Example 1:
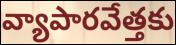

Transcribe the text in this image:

వ్యాపారవేత్తకు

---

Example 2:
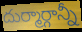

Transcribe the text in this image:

దుర్మార్గాన్నీ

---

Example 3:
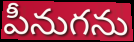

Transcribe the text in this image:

పీనుగను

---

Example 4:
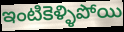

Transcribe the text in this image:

ఇంటికెళ్ళిపోయి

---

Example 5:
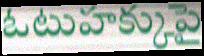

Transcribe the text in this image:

ఓటుహక్కుపై